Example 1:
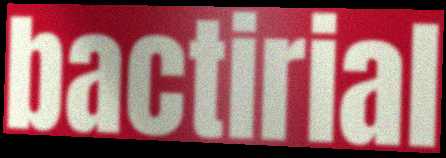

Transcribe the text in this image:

bactirial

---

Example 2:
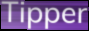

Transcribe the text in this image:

Tipper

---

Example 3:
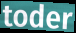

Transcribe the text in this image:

toder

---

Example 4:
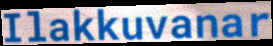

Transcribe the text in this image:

Ilakkuvanar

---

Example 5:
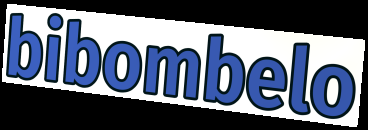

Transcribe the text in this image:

bibombelo